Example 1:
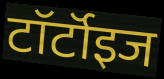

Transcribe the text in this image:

टॉर्टॉइज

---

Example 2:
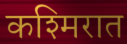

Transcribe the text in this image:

कश्मिरात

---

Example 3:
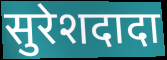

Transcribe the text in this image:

सुरेशदादा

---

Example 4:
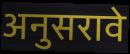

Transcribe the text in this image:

अनुसरावे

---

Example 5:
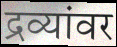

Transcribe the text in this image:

द्रव्यांवर